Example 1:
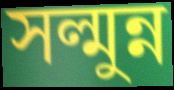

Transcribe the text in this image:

সল্মুন্ন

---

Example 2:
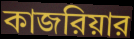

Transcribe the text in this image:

কাজরিয়ার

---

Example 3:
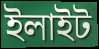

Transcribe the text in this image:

ইলাইট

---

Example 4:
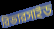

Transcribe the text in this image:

রিভারসাইড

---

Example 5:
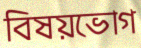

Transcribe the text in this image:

বিষয়ভোগ